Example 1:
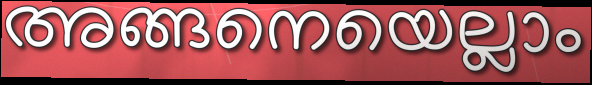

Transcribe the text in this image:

അങ്ങനെയെല്ലാം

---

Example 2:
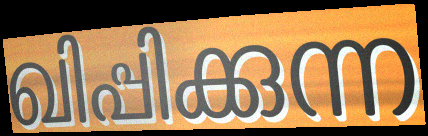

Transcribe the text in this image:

ഖിപ്പിക്കുന്ന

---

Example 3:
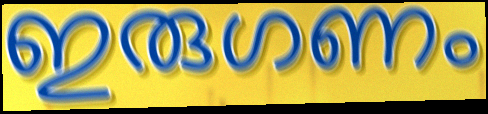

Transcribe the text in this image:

ഇരുഗണം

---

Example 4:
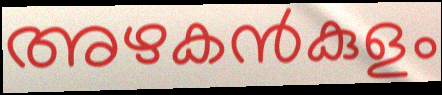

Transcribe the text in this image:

അഴകൻകുളം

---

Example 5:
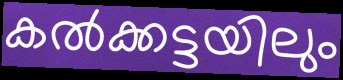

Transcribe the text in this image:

കൽക്കട്ടയിലും